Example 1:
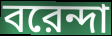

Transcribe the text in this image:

বরেন্দা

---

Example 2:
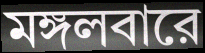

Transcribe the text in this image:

মঙ্গলবারে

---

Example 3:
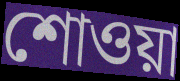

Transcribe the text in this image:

শোওয়া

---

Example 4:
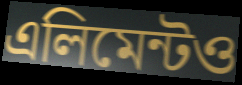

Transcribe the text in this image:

এলিমেন্টও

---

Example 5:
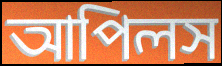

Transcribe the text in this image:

আপিলস